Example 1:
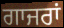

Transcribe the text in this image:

ਗਾਜਰਾਂ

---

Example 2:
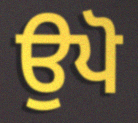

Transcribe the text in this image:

ਉਪੋ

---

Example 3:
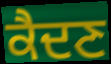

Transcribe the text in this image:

ਕੈਦਣ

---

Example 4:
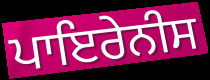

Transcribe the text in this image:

ਪਾਇਰੇਨੀਸ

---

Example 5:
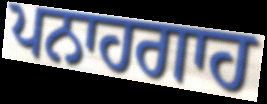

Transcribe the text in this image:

ਪਨਾਹਗਾਹ